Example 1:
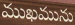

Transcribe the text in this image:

ముఖమును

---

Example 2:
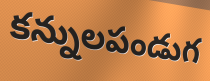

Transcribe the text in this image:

కన్నులపండుగ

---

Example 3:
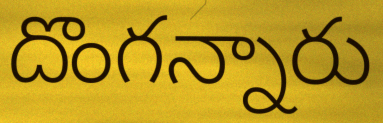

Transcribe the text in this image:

దొంగన్నారు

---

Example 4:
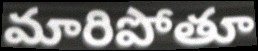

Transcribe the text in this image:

మారిపోతూ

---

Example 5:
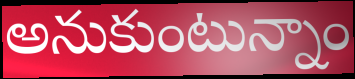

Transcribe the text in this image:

అనుకుంటున్నాం